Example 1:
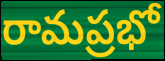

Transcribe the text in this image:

రామప్రభో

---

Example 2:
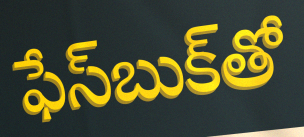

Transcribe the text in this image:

ఫేస్‌బుక్‌తో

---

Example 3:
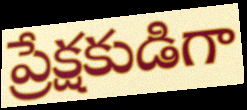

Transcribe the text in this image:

ప్రేక్షకుడిగా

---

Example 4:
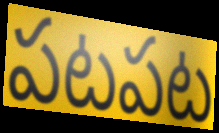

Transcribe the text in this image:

పటపట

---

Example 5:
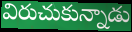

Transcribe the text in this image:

విరుచుకున్నాడు